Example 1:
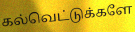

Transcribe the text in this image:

கல்வெட்டுக்களே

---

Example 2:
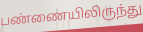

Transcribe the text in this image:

பண்ணையிலிருந்து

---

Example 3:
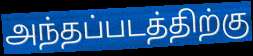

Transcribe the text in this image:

அந்தப்படத்திற்கு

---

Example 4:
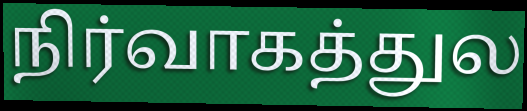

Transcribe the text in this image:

நிர்வாகத்துல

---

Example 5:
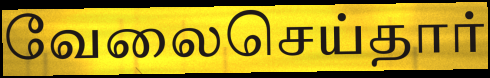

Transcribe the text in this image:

வேலைசெய்தார்